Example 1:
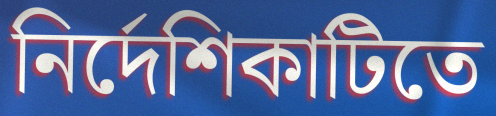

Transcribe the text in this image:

নির্দেশিকাটিতে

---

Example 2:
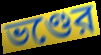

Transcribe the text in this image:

ভণ্ডের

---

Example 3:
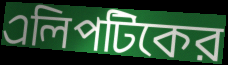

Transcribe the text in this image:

এলিপটিকের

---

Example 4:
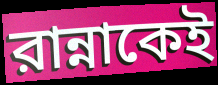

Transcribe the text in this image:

রান্নাকেই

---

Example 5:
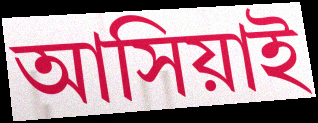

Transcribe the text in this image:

আসিয়াই